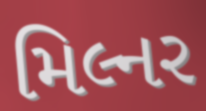
મિલ્નર